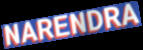
NARENDRA